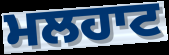
ਮਲਹਾਟ